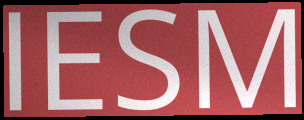
IESM